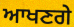
ਆਖਣਗੇ